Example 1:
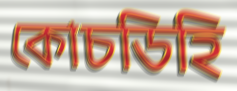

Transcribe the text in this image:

কোচডিহি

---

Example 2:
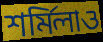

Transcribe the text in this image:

শর্মিলাও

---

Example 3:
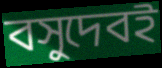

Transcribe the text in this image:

বসুদেবই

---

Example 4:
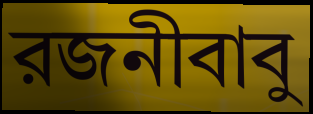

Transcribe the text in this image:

রজনীবাবু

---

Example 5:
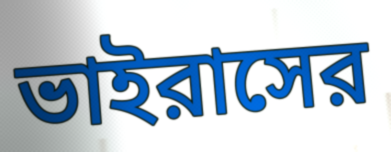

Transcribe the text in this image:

ভাইরাসের